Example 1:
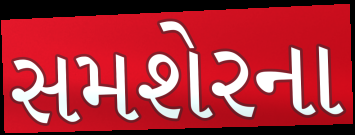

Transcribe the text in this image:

સમશેરના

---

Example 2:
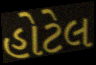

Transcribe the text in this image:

હોટેલ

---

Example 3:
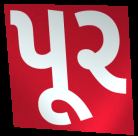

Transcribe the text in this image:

પૂર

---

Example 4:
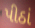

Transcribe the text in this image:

પીઠાં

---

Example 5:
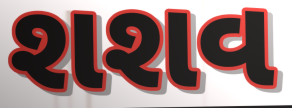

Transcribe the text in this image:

શશવ